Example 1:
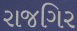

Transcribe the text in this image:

રાજગિર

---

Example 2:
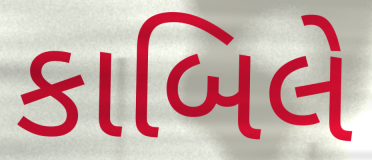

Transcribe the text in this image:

કાબિલે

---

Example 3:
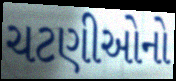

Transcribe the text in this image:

ચટણીઓનો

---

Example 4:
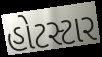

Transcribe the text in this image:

હોટસ્ટાર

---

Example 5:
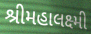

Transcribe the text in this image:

શ્રીમહાલક્ષ્મી